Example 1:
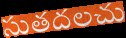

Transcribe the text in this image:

సుతదలచు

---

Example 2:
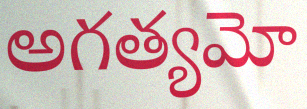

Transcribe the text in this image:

అగత్యమో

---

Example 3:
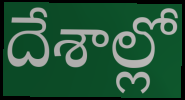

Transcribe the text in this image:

దేశాల్లో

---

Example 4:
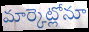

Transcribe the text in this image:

మార్కెట్లోనూ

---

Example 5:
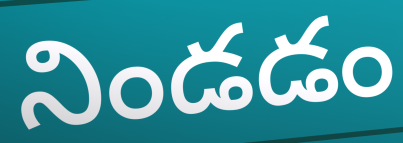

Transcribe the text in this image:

నిండడం